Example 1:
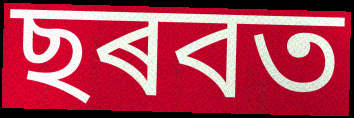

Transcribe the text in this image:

ছৰবত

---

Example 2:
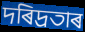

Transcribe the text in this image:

দৰিদ্ৰতাৰ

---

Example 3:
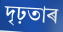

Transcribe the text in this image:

দৃঢ়তাৰ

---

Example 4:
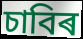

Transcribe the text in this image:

চাবিৰ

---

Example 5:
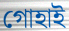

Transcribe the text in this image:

গোহাই